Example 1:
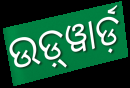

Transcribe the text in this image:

ଉଡ଼୍‍ୱାର୍ଡ଼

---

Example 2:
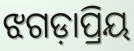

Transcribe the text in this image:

ଝଗଡ଼ାପ୍ରିୟ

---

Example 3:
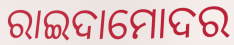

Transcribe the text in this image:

ରାଇଦାମୋଦର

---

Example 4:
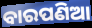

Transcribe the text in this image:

ବାରପଣିଆ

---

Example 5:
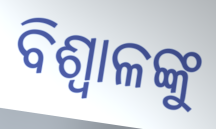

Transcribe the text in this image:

ବିଶ୍ୱାଳଙ୍କୁ